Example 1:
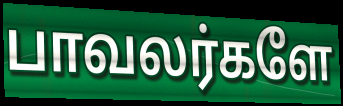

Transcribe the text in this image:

பாவலர்களே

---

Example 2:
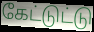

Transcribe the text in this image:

கேட்டுட்டு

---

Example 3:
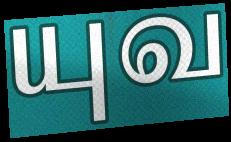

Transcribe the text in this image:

யுவ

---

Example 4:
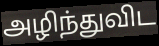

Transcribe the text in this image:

அழிந்துவிட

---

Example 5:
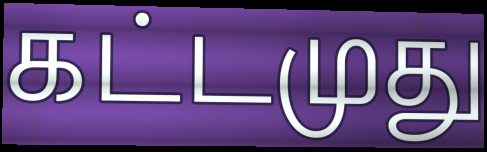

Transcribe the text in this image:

கட்டமுது